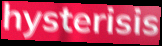
hysterisis